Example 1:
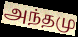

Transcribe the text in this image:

அந்தமு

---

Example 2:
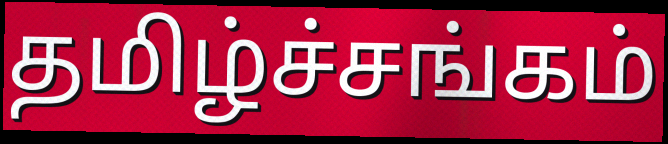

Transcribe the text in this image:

தமிழ்ச்சங்கம்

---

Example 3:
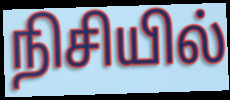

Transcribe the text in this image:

நிசியில்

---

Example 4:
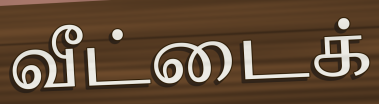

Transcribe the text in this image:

வீட்டைக்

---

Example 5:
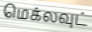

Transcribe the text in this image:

மெக்லவுட்